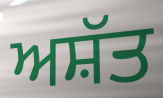
ਅਸ਼ੱਤ